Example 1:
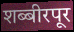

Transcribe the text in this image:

शब्बीरपूर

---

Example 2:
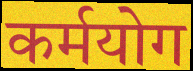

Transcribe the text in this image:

कर्मयोग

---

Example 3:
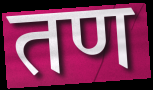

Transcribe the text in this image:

तण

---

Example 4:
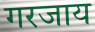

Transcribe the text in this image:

गरजाय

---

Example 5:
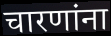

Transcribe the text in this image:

चारणांना